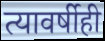
त्यावर्षीही